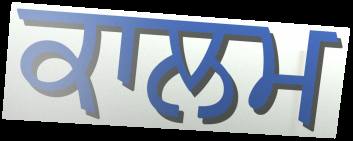
ਕਾਲਮ